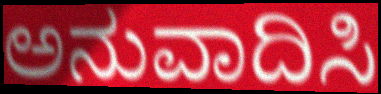
ಅನುವಾದಿಸಿ